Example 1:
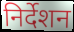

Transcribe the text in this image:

निर्देशन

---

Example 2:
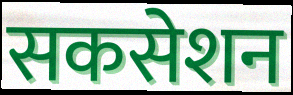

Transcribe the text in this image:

सकसेशन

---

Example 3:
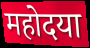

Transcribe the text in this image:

महोदया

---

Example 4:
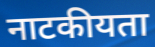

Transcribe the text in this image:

नाटकीयता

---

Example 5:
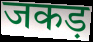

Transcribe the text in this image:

जकड़